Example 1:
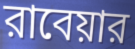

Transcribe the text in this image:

রাবেয়ার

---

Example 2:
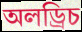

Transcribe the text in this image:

অলড্রিচ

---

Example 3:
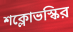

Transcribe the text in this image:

শক্লোভস্কির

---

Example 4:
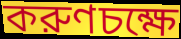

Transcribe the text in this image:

করুণচক্ষে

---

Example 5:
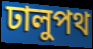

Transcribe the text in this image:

ঢালুপথ